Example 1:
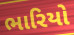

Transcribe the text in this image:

ભારિયો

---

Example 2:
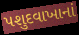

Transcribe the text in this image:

પશુદવાખાનાં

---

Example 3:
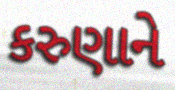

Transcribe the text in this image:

કરુણાને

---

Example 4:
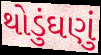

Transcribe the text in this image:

થોડુંઘણું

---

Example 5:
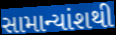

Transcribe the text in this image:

સામાન્યાંશથી